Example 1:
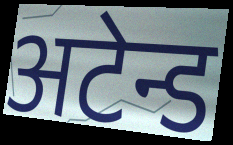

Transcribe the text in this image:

अटेन्ड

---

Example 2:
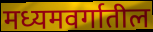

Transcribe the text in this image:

मध्यमवर्गातील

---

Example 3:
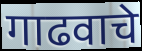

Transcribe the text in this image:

गाढवाचे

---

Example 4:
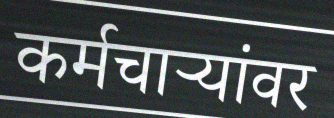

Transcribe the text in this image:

कर्मचार्‍यांवर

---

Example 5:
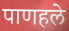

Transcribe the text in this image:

पाणहले